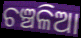
ଚଞ୍ଚଳିଆ